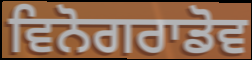
ਵਿਨੋਗਰਾਡੋਵ